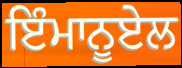
ਇੰਮਾਨੂਏਲ